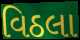
વિઠલા